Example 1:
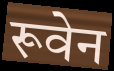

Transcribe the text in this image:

रूवेन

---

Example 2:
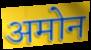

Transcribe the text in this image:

अमोन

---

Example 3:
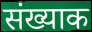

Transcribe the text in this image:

संख्याक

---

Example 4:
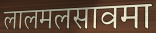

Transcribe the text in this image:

लालमलसावमा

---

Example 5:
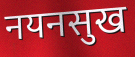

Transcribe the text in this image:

नयनसुख